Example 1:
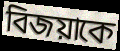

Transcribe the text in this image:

বিজয়াকে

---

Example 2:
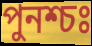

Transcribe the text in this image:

পুনশ্চঃ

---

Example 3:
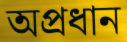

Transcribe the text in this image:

অপ্রধান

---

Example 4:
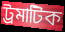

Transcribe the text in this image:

ট্রমাটিক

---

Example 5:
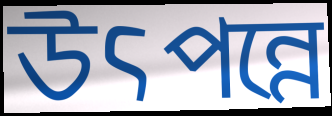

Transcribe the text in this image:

উৎপন্নে